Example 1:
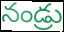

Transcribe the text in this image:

నండ్రు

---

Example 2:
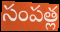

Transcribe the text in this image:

సంపత్ల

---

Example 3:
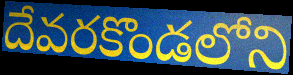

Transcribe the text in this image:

దేవరకొండలోని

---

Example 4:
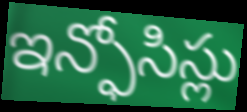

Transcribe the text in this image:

ఇన్ఫోసిస్లు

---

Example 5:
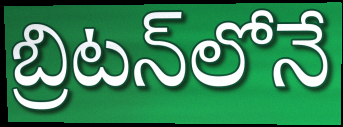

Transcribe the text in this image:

బ్రిటన్‌లోనే